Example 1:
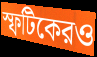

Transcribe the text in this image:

স্ফটিকেরও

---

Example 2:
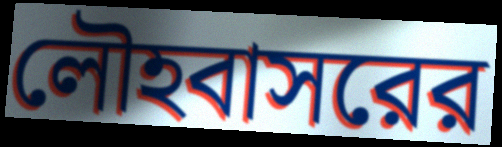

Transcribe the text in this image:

লৌহবাসরের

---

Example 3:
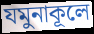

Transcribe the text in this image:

যমুনাকূলে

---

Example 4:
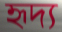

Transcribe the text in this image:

হৃদ্য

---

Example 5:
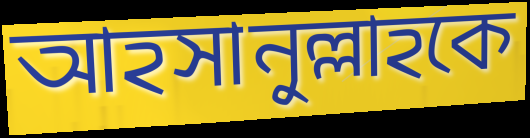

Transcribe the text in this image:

আহসানুল্লাহকে